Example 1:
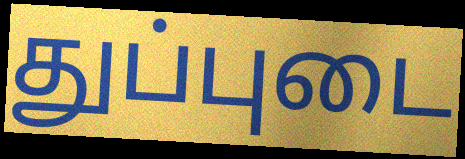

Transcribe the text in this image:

துப்புடை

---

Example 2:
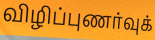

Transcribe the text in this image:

விழிப்புணர்வுக்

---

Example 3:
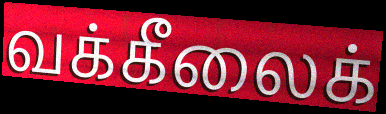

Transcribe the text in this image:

வக்கீலைக்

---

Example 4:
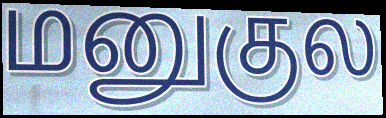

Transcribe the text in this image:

மனுகுல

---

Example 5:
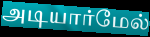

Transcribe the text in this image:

அடியார்மேல்